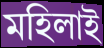
মহিলাই